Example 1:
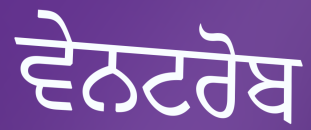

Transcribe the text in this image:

ਵੇਨਟਰੋਬ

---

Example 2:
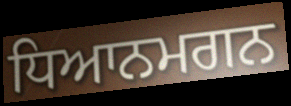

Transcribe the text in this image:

ਧਿਆਨਮਗਨ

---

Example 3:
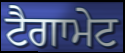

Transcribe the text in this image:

ਟੈਗਾਮੇਟ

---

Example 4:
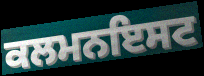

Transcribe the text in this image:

ਕਲਮਨਇਸਟ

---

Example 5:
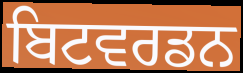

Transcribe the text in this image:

ਬਿਟਵਰਡਨ